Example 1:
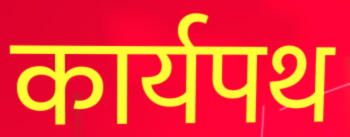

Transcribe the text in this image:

कार्यपथ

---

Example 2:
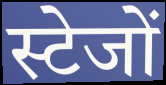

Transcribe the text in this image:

स्टेजों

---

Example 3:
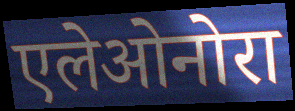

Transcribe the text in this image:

एलेओनोरा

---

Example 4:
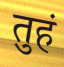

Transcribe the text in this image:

तुहं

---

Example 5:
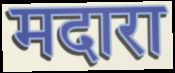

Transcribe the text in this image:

मदारा